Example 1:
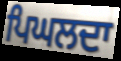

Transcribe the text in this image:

ਪਿਘਲਦਾ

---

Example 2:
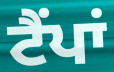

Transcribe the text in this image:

ਟੈਂਪਾਂ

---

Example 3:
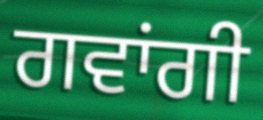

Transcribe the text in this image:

ਗਵਾਂਗੀ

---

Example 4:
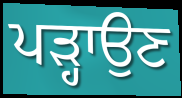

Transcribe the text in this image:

ਪੜ੍ਹਾਉਣ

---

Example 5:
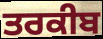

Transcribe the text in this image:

ਤਰਕੀਬ